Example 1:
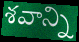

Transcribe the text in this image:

శవాన్ని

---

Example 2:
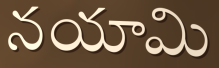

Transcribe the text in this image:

నయామి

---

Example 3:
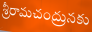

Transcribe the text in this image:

శ్రీరామచంద్రునకు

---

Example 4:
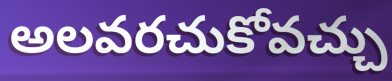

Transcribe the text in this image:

అలవరచుకోవచ్చు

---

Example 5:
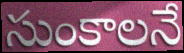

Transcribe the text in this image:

సుంకాలనే